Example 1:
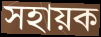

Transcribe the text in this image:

সহায়ক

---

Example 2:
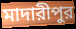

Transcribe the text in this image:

মাদারীপুর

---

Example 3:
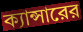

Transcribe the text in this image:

ক্যান্সারের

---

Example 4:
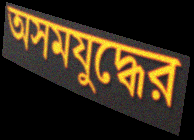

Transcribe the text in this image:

অসমযুদ্ধের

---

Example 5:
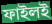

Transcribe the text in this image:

ফাইলই